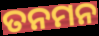
ତନମନ